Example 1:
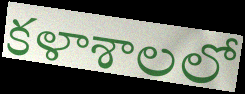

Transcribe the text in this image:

కళాశాలలో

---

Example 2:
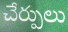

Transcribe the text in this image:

చేర్పులు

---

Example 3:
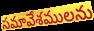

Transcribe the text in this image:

సమావేశములను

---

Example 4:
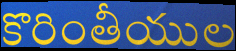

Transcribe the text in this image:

కొరింతీయుల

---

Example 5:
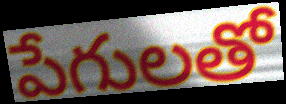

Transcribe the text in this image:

పేగులతో